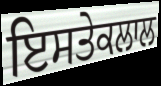
ਇਸਤੇਕਲਾਲ